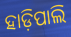
ହାଡ଼ିପାଲି